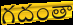
గదంతా